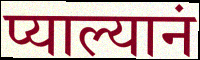
प्याल्यानं